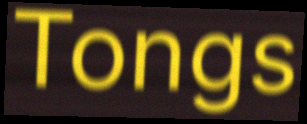
Tongs